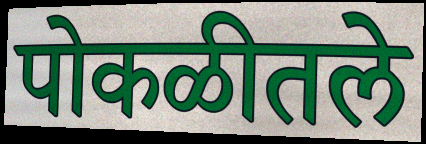
पोकळीतले